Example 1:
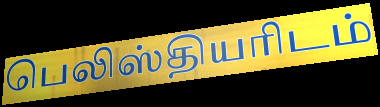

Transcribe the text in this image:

பெலிஸ்தியரிடம்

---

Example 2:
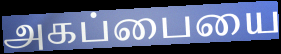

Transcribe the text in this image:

அகப்பையை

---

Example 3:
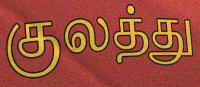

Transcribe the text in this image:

குலத்து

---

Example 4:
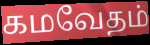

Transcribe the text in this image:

கமவேதம்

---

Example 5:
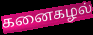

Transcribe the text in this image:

கனைகழல்